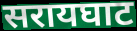
सरायघाट